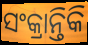
ସଂକ୍ରାନ୍ତିକି